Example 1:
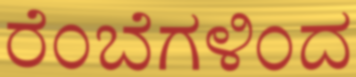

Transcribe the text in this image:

ರೆಂಬೆಗಳಿಂದ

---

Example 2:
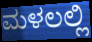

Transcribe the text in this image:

ಮಳಲಲ್ಲಿ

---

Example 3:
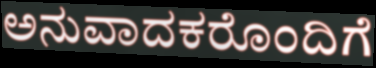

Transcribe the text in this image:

ಅನುವಾದಕರೊಂದಿಗೆ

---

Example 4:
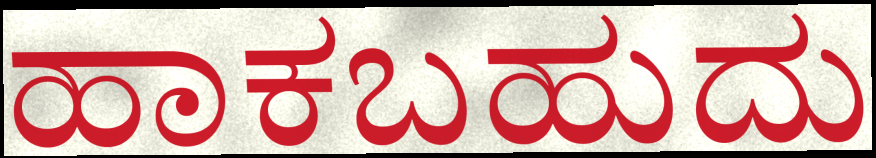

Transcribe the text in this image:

ಹಾಕಬಹುದು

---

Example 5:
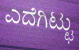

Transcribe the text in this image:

ಎದೆಗಿಟ್ಟು